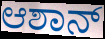
ಆಶಾನ್